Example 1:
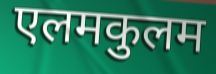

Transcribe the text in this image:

एलमकुलम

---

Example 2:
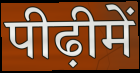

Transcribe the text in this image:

पीढ़ीमें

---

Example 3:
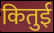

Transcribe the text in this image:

कितुई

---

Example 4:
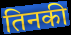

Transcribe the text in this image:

तिनकी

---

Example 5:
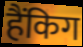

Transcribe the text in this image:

हैंकिग